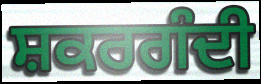
ਸ਼ਕਰਗੰਦੀ